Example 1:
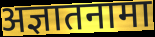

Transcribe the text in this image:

अज्ञातनामा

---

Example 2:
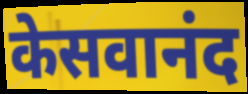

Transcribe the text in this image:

केसवानंद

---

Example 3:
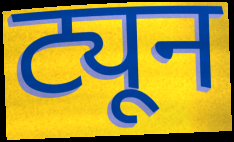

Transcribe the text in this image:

ट्यून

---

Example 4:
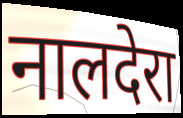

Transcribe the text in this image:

नालदेरा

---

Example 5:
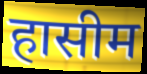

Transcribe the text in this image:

हासीम